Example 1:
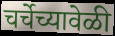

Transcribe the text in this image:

चर्चेच्यावेळी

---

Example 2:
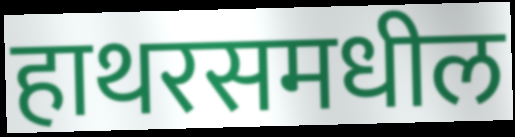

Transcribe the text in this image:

हाथरसमधील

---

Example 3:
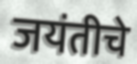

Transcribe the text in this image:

जयंतीचे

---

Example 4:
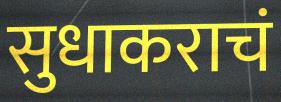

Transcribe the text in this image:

सुधाकराचं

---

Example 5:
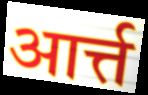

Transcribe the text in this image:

आर्त्त